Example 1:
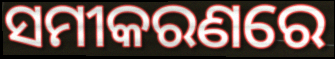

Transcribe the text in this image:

ସମୀକରଣରେ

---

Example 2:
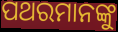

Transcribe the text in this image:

ପଥରମାନଙ୍କୁ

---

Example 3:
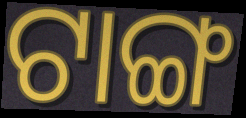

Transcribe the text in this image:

ଟାଙ୍ଗ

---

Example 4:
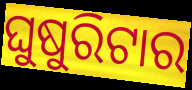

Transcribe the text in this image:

ଘୁଷୁରିଟାର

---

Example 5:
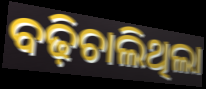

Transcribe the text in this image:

ବଢ଼ିଚାଲିଥିଲା